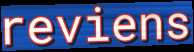
reviens